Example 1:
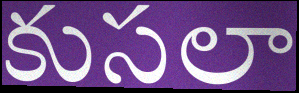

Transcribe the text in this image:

కుసలా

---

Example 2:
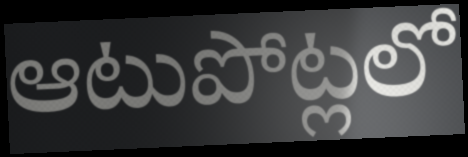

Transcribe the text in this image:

ఆటుపోట్లలో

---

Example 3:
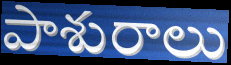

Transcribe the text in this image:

పాశురాలు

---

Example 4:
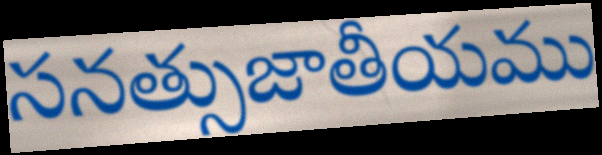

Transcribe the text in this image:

సనత్సుజాతీయము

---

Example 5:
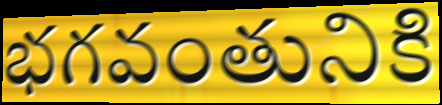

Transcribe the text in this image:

భగవంతునికి